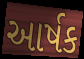
આર્ષક